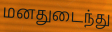
மனதுடைந்து